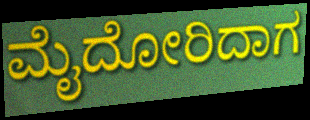
ಮೈದೋರಿದಾಗ